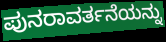
ಪುನರಾವರ್ತನೆಯನ್ನು